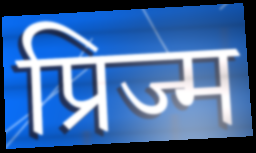
प्रिज्म